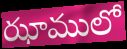
ఝాములో